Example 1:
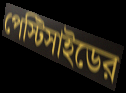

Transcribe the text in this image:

পেস্টিসাইডের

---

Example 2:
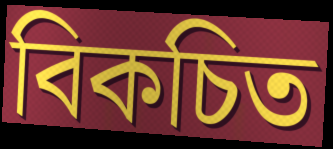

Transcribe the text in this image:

বিকচিত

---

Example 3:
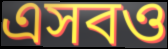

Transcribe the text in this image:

এসবও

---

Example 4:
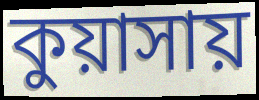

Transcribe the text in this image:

কুয়াসায়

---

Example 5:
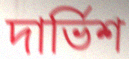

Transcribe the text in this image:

দার্ভিশ